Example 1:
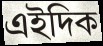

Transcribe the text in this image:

এইদিক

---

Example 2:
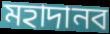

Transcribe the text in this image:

মহাদানব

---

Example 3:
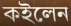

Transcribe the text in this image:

কইলেন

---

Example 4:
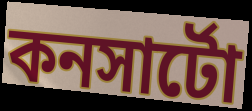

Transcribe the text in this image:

কনসার্টো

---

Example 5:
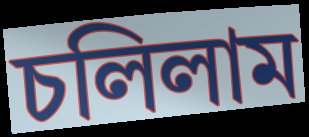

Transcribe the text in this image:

চলিলাম